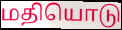
மதியொடு